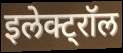
इलेक्ट्रॉल